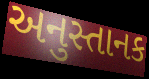
અનુસ્તાનક